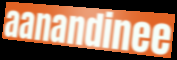
aanandinee